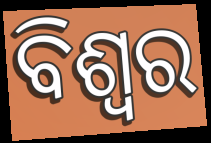
ବିଶ୍ଵର